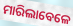
ମାରିଲାବେଳେ